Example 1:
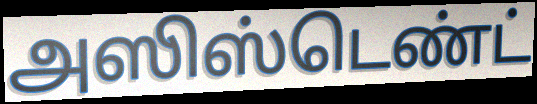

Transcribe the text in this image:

அஸிஸ்டெண்ட்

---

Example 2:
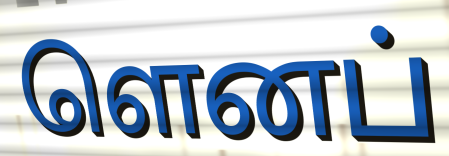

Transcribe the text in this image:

ளெனப்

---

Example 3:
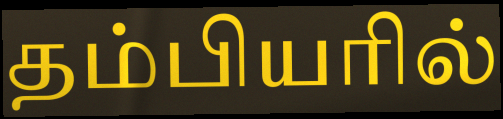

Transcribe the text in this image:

தம்பியரில்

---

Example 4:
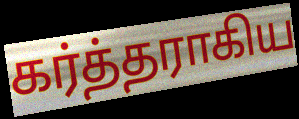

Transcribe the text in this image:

கர்த்தராகிய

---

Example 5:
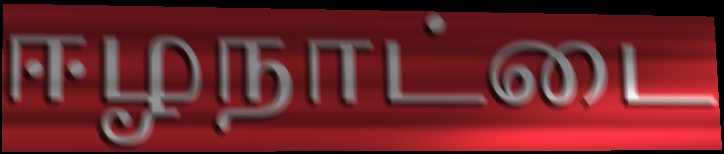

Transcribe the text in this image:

ஈழநாட்டை